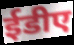
ईडीए